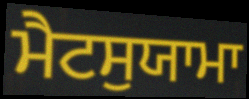
ਮੈਟਸੁਯਾਮਾ